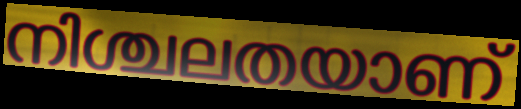
നിശ്ചലതയാണ്